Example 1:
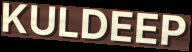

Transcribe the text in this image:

KULDEEP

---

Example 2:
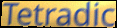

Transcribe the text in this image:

Tetradic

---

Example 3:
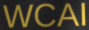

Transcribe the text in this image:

WCAI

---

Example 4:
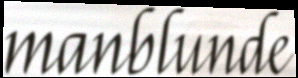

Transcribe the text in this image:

manblunde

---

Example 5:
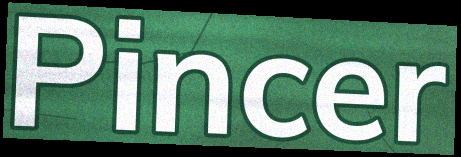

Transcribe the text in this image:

Pincer